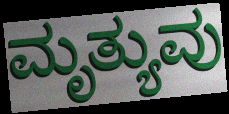
ಮೃತ್ಯುವು